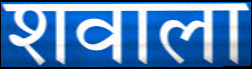
शवाला